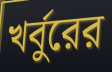
খর্বুরের